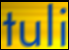
tuli